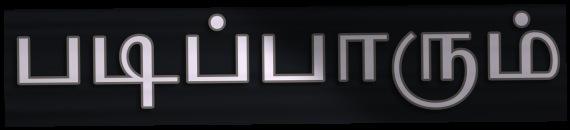
படிப்பாரும்